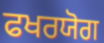
ਫਖਰਯੋਗ